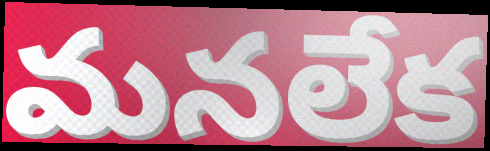
మనలేక